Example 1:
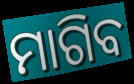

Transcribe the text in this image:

ମାଗିବ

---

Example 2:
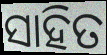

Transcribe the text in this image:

ସାହିତ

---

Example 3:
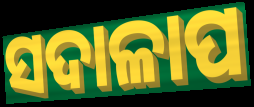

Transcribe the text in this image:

ସଦାଳାପ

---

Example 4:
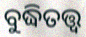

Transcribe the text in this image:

ବୁଦ୍ଧିତତ୍ତ୍ବ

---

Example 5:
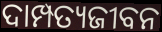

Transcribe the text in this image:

ଦାମ୍ପତ୍ୟଜୀବନ